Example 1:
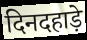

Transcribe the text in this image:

दिनदहाड़े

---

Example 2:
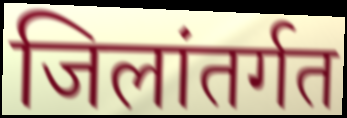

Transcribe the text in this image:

जिलांतर्गत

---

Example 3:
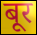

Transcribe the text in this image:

बूर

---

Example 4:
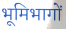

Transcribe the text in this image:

भूमिभागों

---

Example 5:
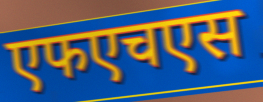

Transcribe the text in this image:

एफएचएस